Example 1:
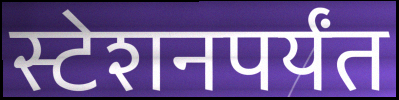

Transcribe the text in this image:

स्टेशनपर्यंत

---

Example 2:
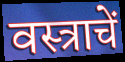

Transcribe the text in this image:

वस्त्राचें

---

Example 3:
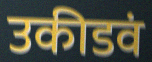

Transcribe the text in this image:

उकीडवं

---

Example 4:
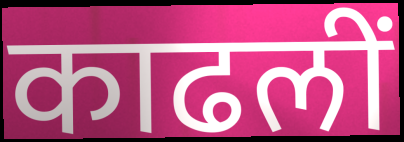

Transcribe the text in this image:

काढलीं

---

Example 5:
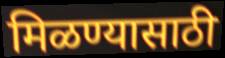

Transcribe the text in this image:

मिळण्यासाठी